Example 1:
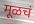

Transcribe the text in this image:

मूळचं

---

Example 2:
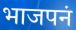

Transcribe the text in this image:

भाजपनं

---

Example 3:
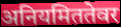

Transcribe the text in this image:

अनियमिततेवर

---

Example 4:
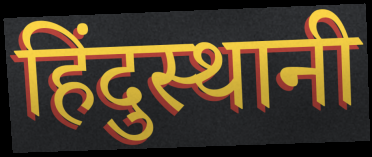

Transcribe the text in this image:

हिंदुस्थानी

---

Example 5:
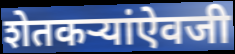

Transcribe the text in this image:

शेतकऱ्यांऐवजी